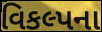
વિકલ્પના